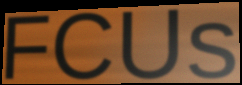
FCUs